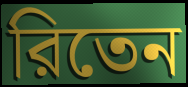
রিতেন